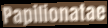
Papilionatae